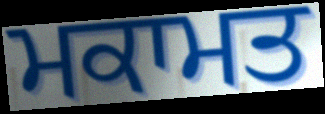
ਮਕਾਮਤ